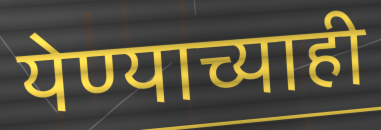
येण्याच्याही